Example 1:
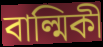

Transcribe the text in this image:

বাল্মিকী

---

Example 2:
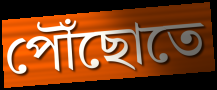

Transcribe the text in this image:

পৌঁছোতে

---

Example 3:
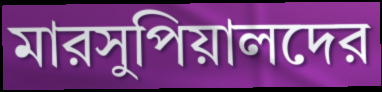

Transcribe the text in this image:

মারসুপিয়ালদের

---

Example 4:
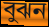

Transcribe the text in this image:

বুঝন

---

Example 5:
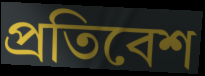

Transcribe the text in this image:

প্রতিবেশ